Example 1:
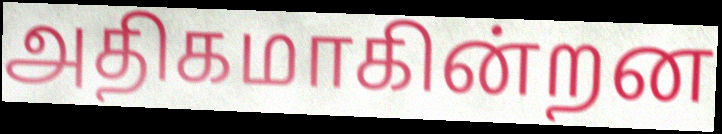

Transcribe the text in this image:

அதிகமாகின்றன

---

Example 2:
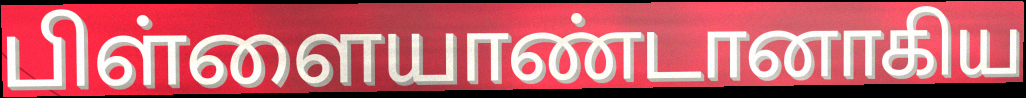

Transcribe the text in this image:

பிள்ளையாண்டானாகிய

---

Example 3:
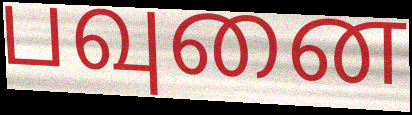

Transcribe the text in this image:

பவுனை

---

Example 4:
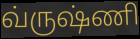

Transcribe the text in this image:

வ்ருஷ்ணி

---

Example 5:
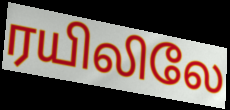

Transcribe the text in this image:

ரயிலிலே